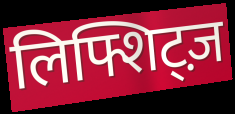
लिफ्शिट्ज़